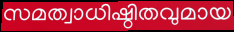
സമത്വാധിഷ്ഠിതവുമായ